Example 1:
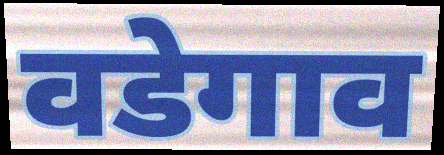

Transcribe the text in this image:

वडेगाव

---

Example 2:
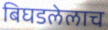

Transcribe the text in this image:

बिघडलेलाच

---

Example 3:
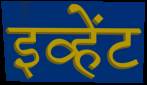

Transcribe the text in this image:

इव्हेंट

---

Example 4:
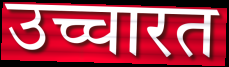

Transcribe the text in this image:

उच्चारत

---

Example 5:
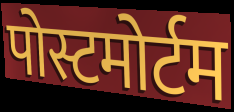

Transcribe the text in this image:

पोस्टमोर्टम